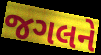
જગલને